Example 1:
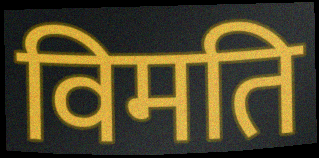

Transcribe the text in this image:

विमति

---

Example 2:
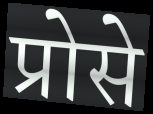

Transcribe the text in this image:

प्रोसे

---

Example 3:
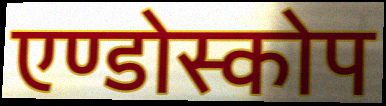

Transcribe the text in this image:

एण्डोस्कोप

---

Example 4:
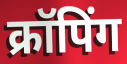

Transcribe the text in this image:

क्रॉपिंग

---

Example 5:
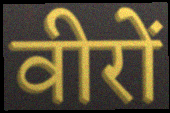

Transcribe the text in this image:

वीरों